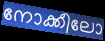
നോക്കീലോ